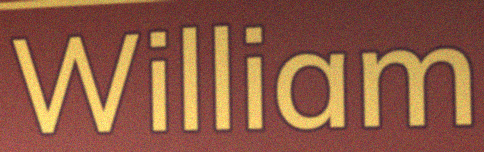
William